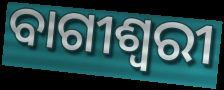
ବାଗୀଶ୍ୱରୀ